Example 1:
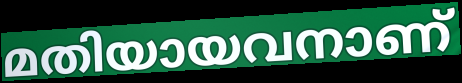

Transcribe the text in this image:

മതിയായവനാണ്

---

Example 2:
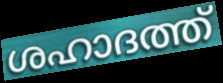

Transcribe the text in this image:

ശഹാദത്ത്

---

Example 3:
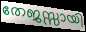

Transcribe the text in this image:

തേജസ്സായി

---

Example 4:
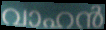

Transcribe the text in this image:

വാഹൻ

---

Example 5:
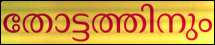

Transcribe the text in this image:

തോട്ടത്തിനും